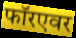
फॉरएवर